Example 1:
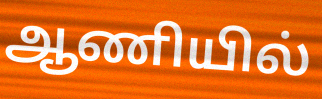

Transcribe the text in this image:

ஆணியில்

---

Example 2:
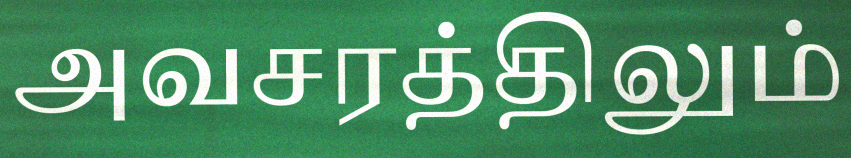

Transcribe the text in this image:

அவசரத்திலும்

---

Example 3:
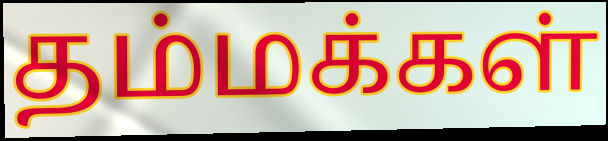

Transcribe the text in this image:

தம்மக்கள்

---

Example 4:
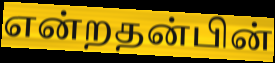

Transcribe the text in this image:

என்றதன்பின்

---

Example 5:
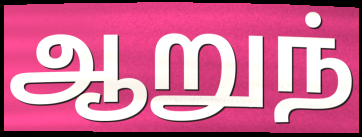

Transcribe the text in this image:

ஆறுந்